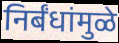
निर्बंधांमुळे